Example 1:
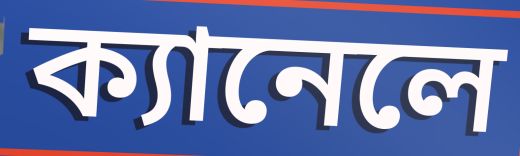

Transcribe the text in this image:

ক্যানেলে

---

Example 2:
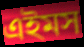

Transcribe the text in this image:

এইমস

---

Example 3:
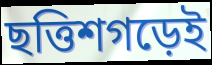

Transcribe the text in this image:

ছত্তিশগড়েই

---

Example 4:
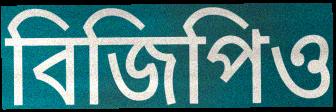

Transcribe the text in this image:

বিজিপিও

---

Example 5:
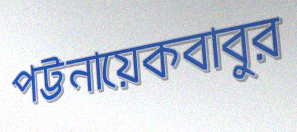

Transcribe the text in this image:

পট্টনায়েকবাবুর